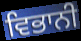
ਵਿਭਾਨੀ